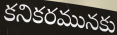
కనికరమునకు